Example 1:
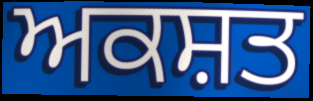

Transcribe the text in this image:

ਅਕਸ਼ਤ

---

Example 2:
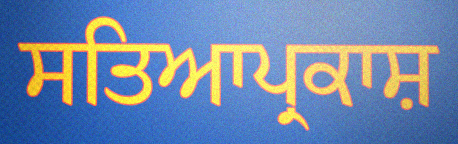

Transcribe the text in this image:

ਸਤਿਆਪ੍ਰਕਾਸ਼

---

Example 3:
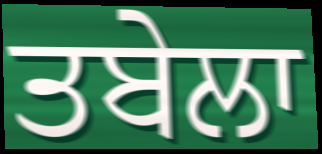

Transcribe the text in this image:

ਤਬੇਲਾ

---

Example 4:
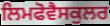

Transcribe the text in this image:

ਲਿਮਫੋਵੈਸਕੁਲਰ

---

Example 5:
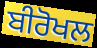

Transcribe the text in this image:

ਬੀਰੋਖਲ